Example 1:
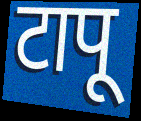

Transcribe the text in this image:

टापू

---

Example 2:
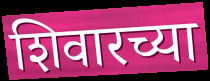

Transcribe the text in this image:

शिवारच्या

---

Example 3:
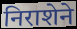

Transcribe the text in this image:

निराशेने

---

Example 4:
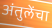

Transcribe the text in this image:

अंतुलेंचा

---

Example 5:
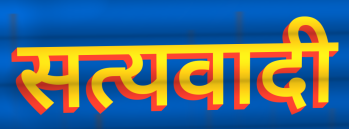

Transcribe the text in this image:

सत्यवादी